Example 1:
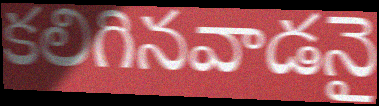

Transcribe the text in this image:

కలిగినవాడనై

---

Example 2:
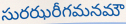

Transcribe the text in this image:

సురఝరీగమనమౌ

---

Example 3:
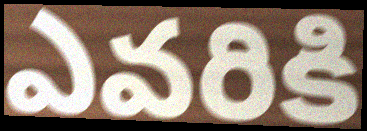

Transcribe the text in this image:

ఎవరికి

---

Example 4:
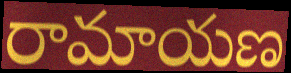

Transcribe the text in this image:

రామాయణ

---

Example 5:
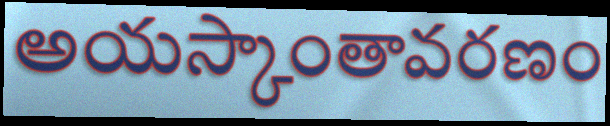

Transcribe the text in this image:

అయస్కాంతావరణం